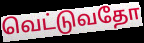
வெட்டுவதோ